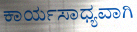
ಕಾರ್ಯಸಾಧ್ಯವಾಗಿ